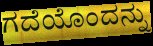
ಗದೆಯೊಂದನ್ನು